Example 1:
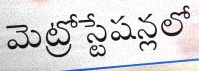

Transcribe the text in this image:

మెట్రోస్టేషన్లలో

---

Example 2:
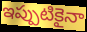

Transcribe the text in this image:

ఇప్పుటికైనా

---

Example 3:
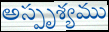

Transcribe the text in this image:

అస్పృశ్యము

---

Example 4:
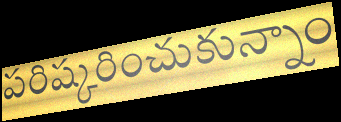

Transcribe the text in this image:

పరిష్కరించుకున్నాం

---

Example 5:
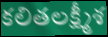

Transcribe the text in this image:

కలితలక్ష్మీశ